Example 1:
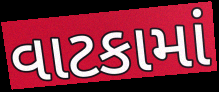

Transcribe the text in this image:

વાટકામાં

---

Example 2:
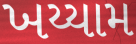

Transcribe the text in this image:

ખય્યામ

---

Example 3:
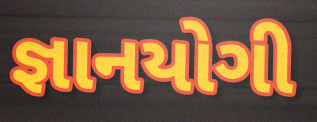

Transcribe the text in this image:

જ્ઞાનયોગી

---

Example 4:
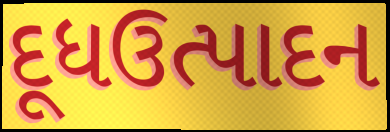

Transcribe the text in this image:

દૂધઉત્પાદન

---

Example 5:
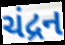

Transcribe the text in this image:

ચંદ્રન